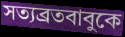
সত্যব্রতবাবুকে